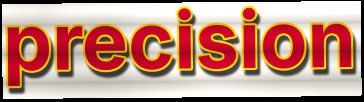
precision